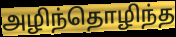
அழிந்தொழிந்த